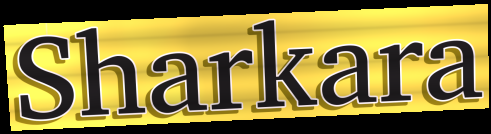
Sharkara